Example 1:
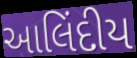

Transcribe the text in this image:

આલિંદીય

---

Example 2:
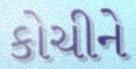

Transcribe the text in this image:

કોચીને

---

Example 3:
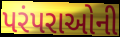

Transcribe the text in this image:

પરંપરાઓની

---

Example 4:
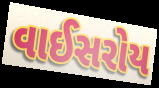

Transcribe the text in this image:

વાઈસરોય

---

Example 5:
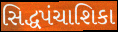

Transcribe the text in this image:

સિદ્ધપંચાશિકા